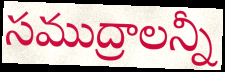
సముద్రాలన్నీ